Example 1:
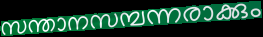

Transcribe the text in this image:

സന്താനസമ്പന്നരാക്കും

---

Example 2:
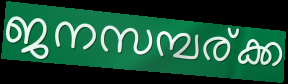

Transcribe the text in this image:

ജനസമ്പര്ക്ക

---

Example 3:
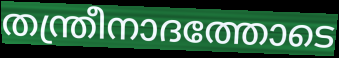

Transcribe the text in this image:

തന്ത്രീനാദത്തോടെ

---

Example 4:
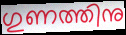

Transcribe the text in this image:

ഗുണത്തിനു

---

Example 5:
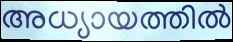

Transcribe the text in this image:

അധ്യായത്തിൽ